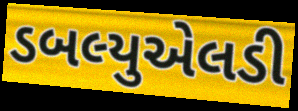
ડબલ્યુએલડી